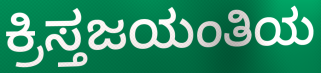
ಕ್ರಿಸ್ತಜಯಂತಿಯ